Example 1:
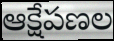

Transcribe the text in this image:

ఆక్షేపణల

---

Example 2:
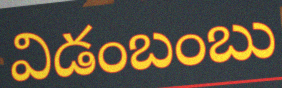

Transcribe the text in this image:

విడంబంబు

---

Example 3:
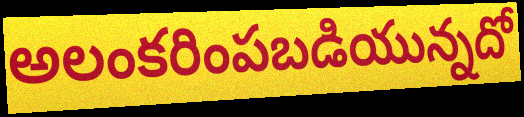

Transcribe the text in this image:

అలంకరింపబడియున్నదో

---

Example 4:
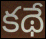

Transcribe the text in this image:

కథే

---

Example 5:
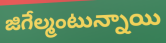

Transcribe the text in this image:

జిగేల్మంటున్నాయి